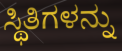
ಸ್ಥಿತಿಗಳನ್ನು